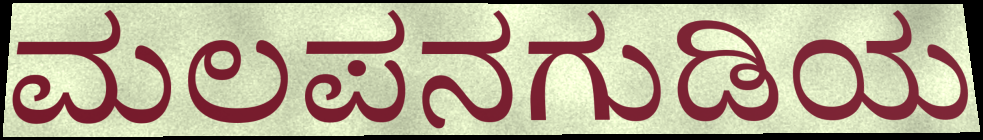
ಮಲಪನಗುಡಿಯ